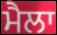
ਮੈਲਾ